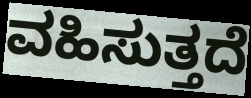
ವಹಿಸುತ್ತದೆ